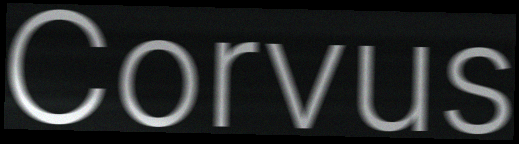
Corvus